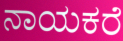
ನಾಯಕರೆ